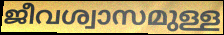
ജീവശ്വാസമുള്ള